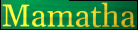
Mamatha